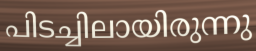
പിടച്ചിലായിരുന്നു